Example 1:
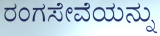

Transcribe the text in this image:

ರಂಗಸೇವೆಯನ್ನು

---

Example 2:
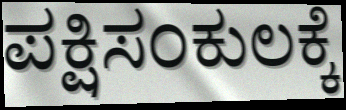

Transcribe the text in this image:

ಪಕ್ಷಿಸಂಕುಲಕ್ಕೆ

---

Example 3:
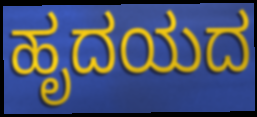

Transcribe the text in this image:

ಹೃದಯದ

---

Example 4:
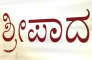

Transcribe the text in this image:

ಶ್ರೀಪಾದ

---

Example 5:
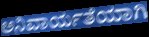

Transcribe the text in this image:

ಅನಿವಾರ್ಯತೆಯಾಗಿ